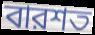
বারশত